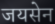
जयसेन